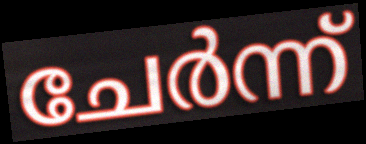
ചേർന്ന്